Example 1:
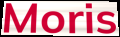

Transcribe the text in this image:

Moris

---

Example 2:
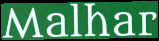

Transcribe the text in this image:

Malhar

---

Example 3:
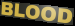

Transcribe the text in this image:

BLOOD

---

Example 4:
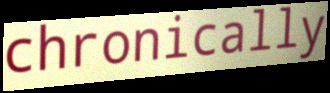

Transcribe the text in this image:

chronically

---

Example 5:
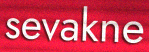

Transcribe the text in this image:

sevakne